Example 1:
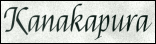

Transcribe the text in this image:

Kanakapura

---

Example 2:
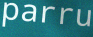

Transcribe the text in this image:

parru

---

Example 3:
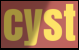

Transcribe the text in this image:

cyst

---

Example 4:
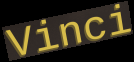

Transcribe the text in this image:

Vinci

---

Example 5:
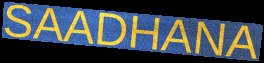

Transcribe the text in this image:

SAADHANA